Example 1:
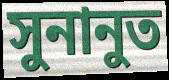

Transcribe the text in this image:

সুনানুত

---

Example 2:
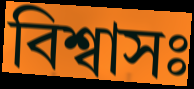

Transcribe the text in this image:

বিশ্বাসঃ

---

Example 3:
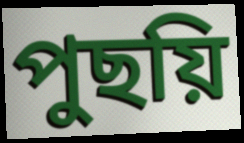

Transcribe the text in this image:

পুছয়ি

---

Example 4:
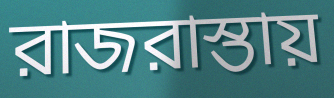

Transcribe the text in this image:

রাজরাস্তায়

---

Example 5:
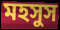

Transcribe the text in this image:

মহসুস